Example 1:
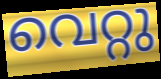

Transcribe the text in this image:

വെറ്റു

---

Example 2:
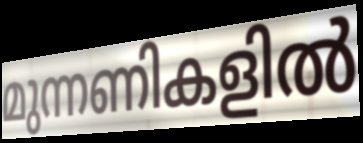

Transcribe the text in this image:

മുന്നണികളിൽ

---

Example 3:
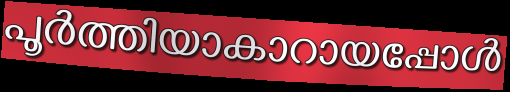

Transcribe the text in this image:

പൂർത്തിയാകാറായപ്പോൾ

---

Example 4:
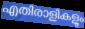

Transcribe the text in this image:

എതിരാളികളും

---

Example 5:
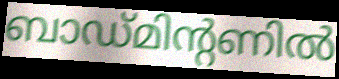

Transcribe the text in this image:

ബാഡ്മിന്റണിൽ